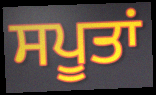
ਸਪੂਤਾਂ